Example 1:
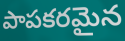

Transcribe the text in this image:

పాపకరమైన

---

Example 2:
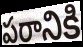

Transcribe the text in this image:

పరానికి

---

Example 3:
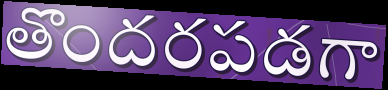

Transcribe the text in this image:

తొందరపడగా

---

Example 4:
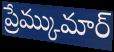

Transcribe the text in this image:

ప్రేమ్కుమార్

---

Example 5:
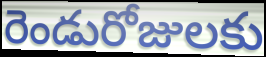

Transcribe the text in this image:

రెండురోజులకు